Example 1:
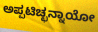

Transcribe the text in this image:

ಅಪ್ಪಟಿಚ್ಛನ್ನಾಯೋ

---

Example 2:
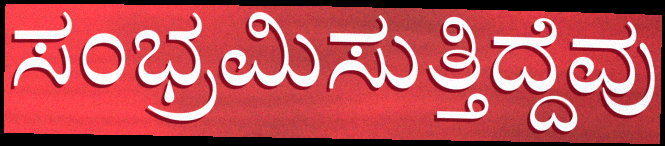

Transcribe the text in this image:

ಸಂಭ್ರಮಿಸುತ್ತಿದ್ದೆವು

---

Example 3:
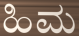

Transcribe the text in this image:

ಹಿಮ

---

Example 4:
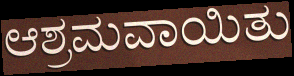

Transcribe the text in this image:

ಆಶ್ರಮವಾಯಿತು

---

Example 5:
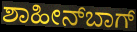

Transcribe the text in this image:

ಶಾಹೀನ್‌ಬಾಗ್